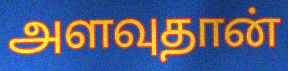
அளவுதான்